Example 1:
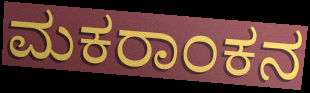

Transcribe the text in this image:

ಮಕರಾಂಕನ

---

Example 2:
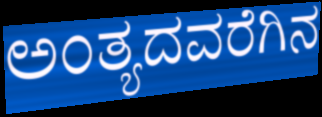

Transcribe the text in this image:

ಅಂತ್ಯದವರೆಗಿನ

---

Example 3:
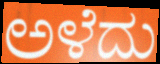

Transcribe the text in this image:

ಅಳೆದು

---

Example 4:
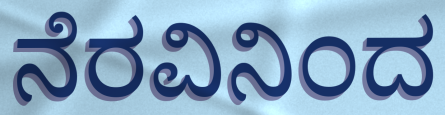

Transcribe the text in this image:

ನೆರವಿನಿಂದ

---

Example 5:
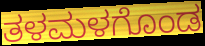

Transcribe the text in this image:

ತಳಮಳಗೊಂಡ